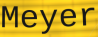
Meyer